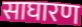
साघारण